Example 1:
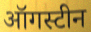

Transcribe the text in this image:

ऑगस्टीन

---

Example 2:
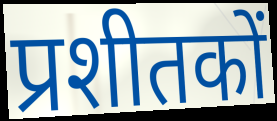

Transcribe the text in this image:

प्रशीतकों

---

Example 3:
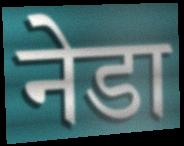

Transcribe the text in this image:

नेडा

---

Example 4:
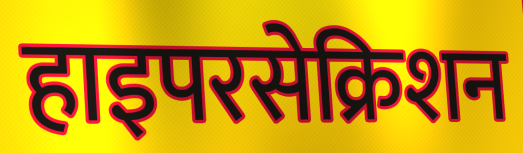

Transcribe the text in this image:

हाइपरसेक्रिशन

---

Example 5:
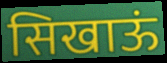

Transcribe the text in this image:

सिखाऊं